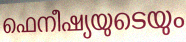
ഫെനീഷ്യയുടെയും